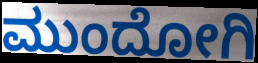
ಮುಂದೋಗಿ